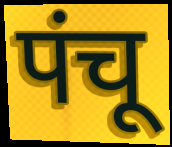
पंचू